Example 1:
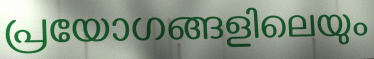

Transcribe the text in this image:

പ്രയോഗങ്ങളിലെയും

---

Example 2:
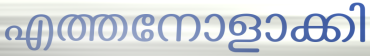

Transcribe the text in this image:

എത്തനോളാക്കി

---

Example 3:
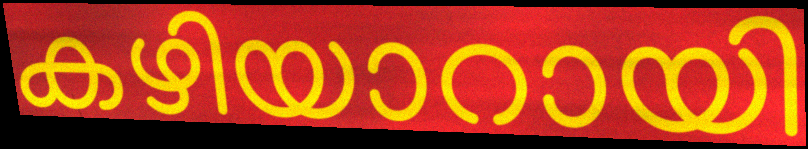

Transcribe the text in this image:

കഴിയാറായി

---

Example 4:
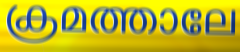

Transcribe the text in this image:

ക്രമത്താലേ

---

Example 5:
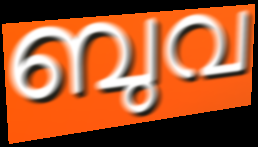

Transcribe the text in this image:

ബുവ